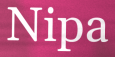
Nipa